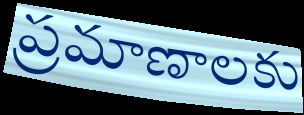
ప్రమాణాలకు